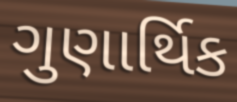
ગુણાર્થિક